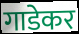
गाडेकर